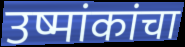
उष्मांकांचा